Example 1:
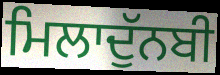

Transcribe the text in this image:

ਮਿਲਾਦੁੱਨਬੀ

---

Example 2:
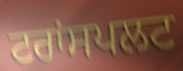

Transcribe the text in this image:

ਟਰਾਂਸਪਲਟ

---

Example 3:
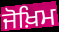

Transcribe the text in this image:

ਜੋਖ਼ਿਮ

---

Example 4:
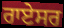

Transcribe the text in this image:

ਰਾਏਸਰ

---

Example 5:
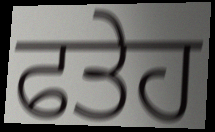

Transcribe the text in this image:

ਫਤੇਹ